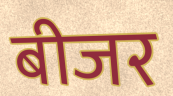
बीजर